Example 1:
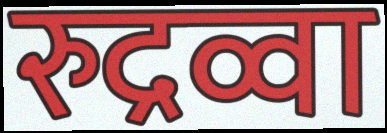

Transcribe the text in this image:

रुद्रव्वा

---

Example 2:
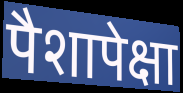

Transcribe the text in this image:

पैशापेक्षा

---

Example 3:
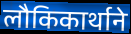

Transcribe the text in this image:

लौकिकार्थाने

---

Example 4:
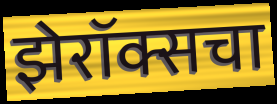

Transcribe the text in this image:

झेरॉक्सचा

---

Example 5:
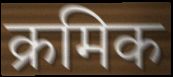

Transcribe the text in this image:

क्रमिक